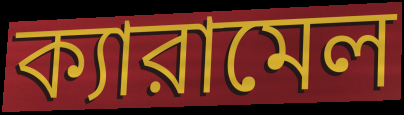
ক্যারামেল